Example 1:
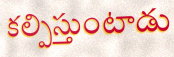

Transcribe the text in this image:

కల్పిస్తుంటాడు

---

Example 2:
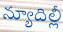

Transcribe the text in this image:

న్యూదిల్లీ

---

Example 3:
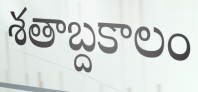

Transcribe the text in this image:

శతాబ్దకాలం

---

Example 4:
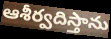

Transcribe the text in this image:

ఆశీర్వదిస్తాను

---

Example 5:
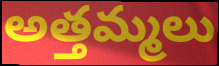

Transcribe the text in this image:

అత్తమ్మలు